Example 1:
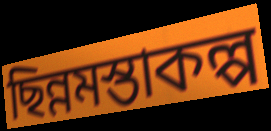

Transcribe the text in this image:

ছিন্নমস্তাকল্প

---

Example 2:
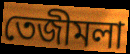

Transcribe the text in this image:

তেজীমলা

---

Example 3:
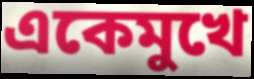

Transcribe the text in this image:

একেমুখে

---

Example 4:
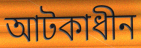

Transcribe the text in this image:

আটকাধীন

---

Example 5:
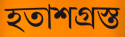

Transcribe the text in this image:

হতাশগ্ৰস্ত